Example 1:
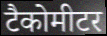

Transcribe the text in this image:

टैकोमीटर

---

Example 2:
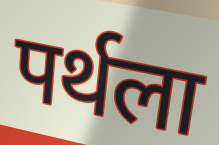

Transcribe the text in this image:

पर्थला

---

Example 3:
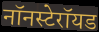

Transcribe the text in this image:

नॉनस्टेरॉयड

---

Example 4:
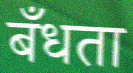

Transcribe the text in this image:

बँधता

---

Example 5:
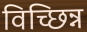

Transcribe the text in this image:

विच्छिन्न